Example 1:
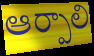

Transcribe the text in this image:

ఆర్పాలి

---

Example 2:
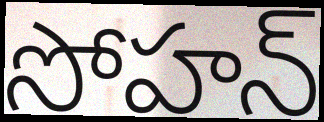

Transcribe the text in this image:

సోహన్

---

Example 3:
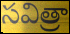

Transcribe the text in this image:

సవిత్రా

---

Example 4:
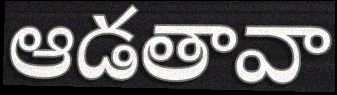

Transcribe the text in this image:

ఆడతావా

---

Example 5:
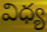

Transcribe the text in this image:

విధ్య